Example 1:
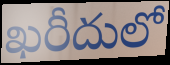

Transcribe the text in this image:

ఖరీదులో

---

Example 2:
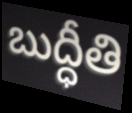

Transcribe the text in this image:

బుద్ధీతి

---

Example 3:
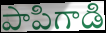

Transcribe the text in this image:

పాపిగాడి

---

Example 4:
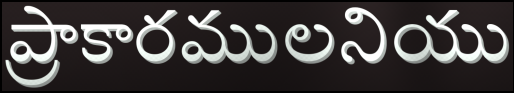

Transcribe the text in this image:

ప్రాకారములనియు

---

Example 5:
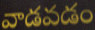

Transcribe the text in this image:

వాడవడం